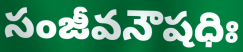
సంజీవనౌషధిః